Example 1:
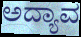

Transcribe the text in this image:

ಅದ್ಯಾವ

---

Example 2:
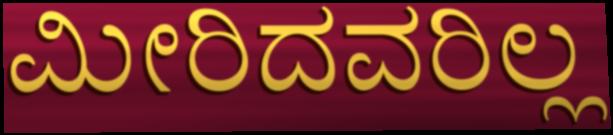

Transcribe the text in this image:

ಮೀರಿದವರಿಲ್ಲ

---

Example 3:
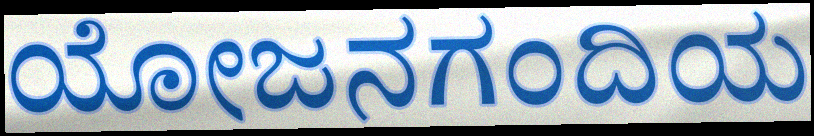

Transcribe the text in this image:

ಯೋಜನಗಂದಿಯ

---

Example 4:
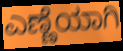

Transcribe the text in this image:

ಎಣ್ಣೆಯಾಗಿ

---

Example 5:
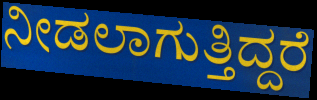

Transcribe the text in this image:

ನೀಡಲಾಗುತ್ತಿದ್ದರೆ